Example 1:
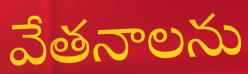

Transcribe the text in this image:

వేతనాలను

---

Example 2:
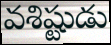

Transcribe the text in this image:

వశిష్టుడు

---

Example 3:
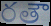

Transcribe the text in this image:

రతౌ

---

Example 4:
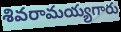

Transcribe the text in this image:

శివరామయ్యగారు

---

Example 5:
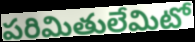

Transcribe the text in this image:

పరిమితులేమిటో